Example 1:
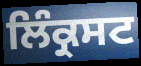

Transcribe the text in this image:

ਲਿੰਕ੍ਰਸਟ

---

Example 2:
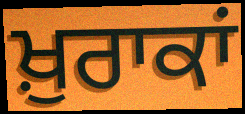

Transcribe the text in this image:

ਖ਼ੁਰਾਕਾਂ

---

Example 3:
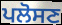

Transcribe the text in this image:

ਪਲੋਸਣ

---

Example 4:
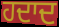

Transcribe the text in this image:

ਹਦਾਦ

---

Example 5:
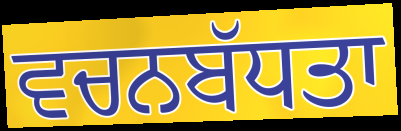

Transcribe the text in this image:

ਵਚਨਬੱਧਤਾ